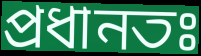
প্ৰধানতঃ